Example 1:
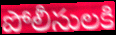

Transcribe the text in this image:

పోలీసులకి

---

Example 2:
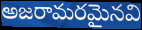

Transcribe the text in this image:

అజరామరమైనవి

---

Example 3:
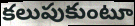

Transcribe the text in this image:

కలుపుకుంటూ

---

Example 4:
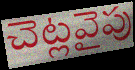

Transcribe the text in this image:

చెట్లవైపు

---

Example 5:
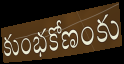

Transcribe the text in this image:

కుంభకోణంకు